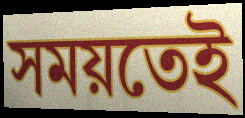
সময়তেই